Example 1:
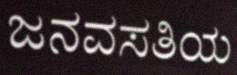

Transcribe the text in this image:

ಜನವಸತಿಯ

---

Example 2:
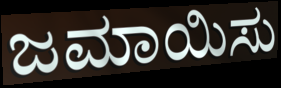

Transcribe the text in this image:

ಜಮಾಯಿಸು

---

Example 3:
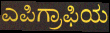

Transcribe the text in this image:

ಎಪಿಗ್ರಾಫಿಯ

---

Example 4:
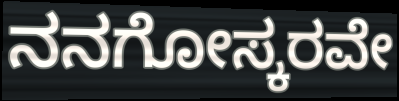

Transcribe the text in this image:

ನನಗೋಸ್ಕರವೇ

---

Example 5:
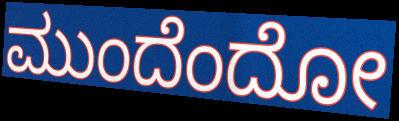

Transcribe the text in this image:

ಮುಂದೆಂದೋ